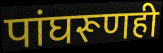
पांघरूणही